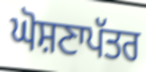
ਘੋਸ਼ਣਾਪੱਤਰ